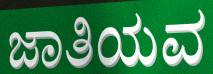
ಜಾತಿಯವ